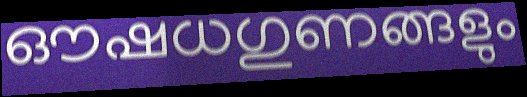
ഔഷധഗുണങ്ങളും